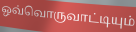
ஒவ்வொருவாட்டியும்